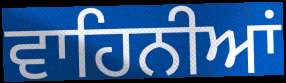
ਵਾਹਿਨੀਆਂ